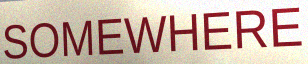
SOMEWHERE